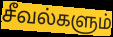
சீவல்களும்